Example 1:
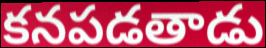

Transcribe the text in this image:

కనపడతాడు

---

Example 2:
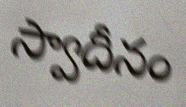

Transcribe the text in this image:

స్వాదీనం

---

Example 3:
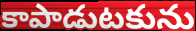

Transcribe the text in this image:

కాపాడుటకును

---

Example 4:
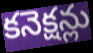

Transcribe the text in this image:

కనెక్షన్లు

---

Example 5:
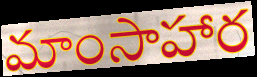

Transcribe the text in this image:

మాంసాహార